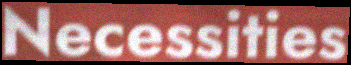
Necessities